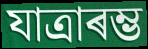
যাত্ৰাৰম্ভ